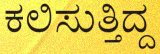
ಕಲಿಸುತ್ತಿದ್ದ